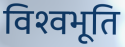
विश्वभूति